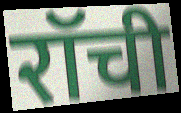
रॉची